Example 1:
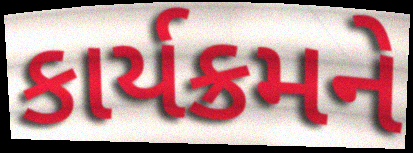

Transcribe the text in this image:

કાર્યક્રમને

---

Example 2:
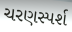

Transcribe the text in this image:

ચરણસ્પર્શ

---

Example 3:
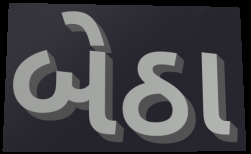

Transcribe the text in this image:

બેઠા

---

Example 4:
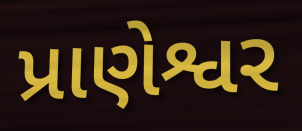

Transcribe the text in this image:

પ્રાણેશ્વર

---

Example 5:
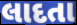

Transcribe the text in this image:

લાદતા